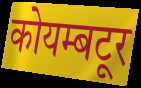
कोयम्‍बटूर